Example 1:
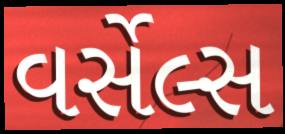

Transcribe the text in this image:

વર્સેલ્સ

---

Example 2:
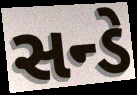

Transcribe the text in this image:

સન્ડે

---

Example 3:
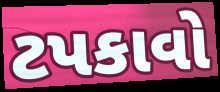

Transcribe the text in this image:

ટપકાવો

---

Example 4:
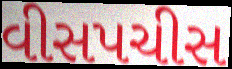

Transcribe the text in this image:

વીસપચીસ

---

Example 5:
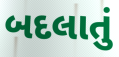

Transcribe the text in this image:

બદલાતું